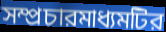
সম্প্রচারমাধ্যমটির